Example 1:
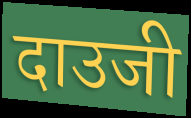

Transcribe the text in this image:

दाउजी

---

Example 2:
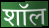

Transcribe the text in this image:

शॉल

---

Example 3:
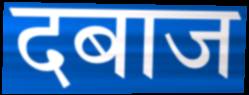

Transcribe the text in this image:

दबाज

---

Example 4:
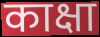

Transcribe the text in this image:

काक्षा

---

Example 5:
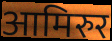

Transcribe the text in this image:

आमिरुर